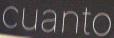
cuanto